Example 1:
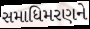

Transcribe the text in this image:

સમાધિમરણને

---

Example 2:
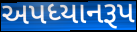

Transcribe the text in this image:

અપધ્યાનરૂપ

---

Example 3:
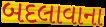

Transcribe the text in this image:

બદલાવાના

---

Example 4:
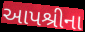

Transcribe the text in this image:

આપશ્રીના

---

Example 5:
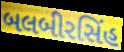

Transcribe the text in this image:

બલબીરસિંહ